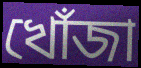
খোঁজা